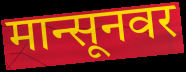
मान्सूनवर